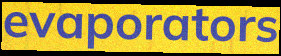
evaporators